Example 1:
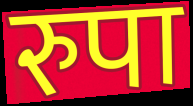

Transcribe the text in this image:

रुपा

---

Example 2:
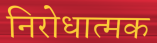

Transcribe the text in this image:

निरोधात्मक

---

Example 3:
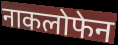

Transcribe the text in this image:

नाकलोफेन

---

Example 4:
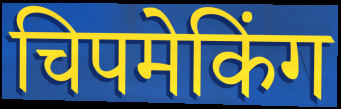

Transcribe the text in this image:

चिपमेकिंग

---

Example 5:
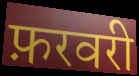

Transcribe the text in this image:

फ़रवरी